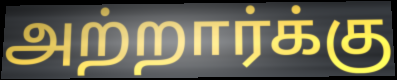
அற்றார்க்கு